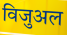
विजुअल